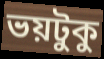
ভয়টুকু